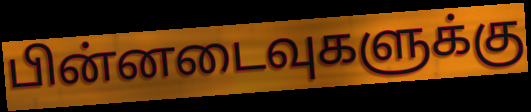
பின்னடைவுகளுக்கு